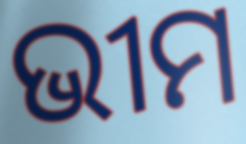
ଭୀମ